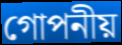
গোপনীয়